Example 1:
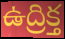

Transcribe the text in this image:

ఉద్రిక్త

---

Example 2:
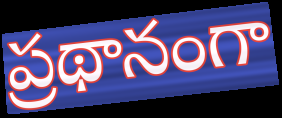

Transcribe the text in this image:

ప్రథానంగా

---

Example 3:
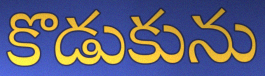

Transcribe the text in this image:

కొడుకును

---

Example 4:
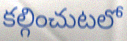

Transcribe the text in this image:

కల్గించుటలో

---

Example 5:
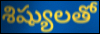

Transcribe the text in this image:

శిష్యులతో